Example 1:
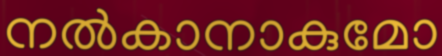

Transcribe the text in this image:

നൽകാനാകുമോ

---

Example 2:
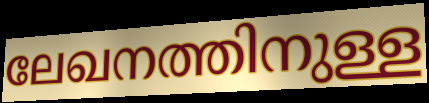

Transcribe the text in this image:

ലേഖനത്തിനുള്ള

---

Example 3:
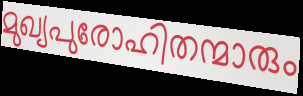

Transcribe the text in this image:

മുഖ്യപുരോഹിതന്മാരും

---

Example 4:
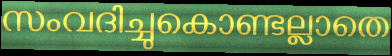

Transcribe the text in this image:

സംവദിച്ചുകൊണ്ടല്ലാതെ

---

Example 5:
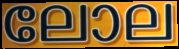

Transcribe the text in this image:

ലോല